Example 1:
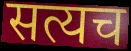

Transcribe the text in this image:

सत्यच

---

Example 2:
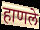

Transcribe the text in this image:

हाणले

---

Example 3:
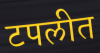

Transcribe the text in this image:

टपलीत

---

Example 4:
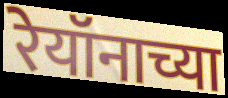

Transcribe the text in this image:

रेयॉनाच्या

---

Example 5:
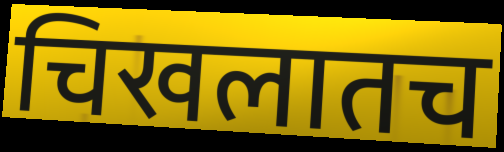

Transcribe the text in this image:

चिखलातच